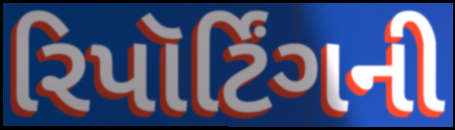
રિપૉર્ટિંગની